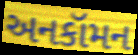
અનકૉમન